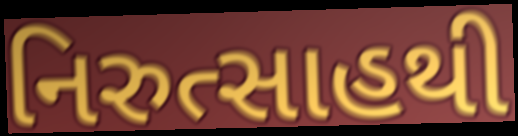
નિરુત્સાહથી